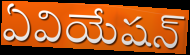
ఏవియేషన్